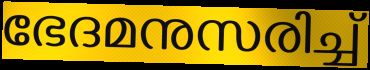
ഭേദമനുസരിച്ച്